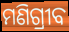
ମଣିଗ୍ରୀବ